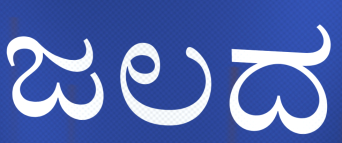
ಜಲದ